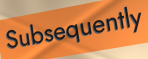
Subsequently